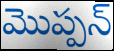
మొప్పన్